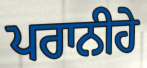
ਪਰਾਨੀਹੇ